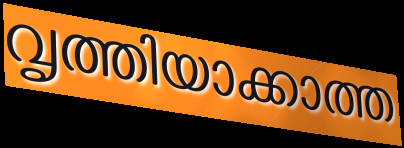
വൃത്തിയാക്കാത്ത